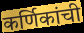
कर्णिकांची